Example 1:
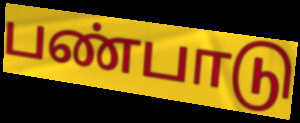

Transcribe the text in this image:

பண்பாடு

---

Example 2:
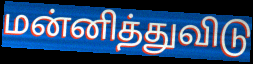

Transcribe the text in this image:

மன்னித்துவிடு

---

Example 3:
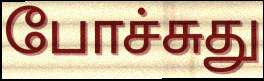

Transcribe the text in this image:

போச்சுது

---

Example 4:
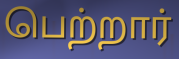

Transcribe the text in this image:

பெற்றார்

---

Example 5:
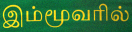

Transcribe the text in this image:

இம்மூவரில்